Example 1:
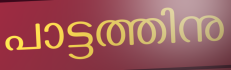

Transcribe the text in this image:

പാട്ടത്തിനു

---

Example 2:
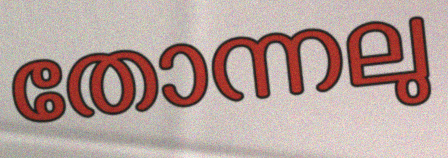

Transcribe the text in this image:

തോന്നലു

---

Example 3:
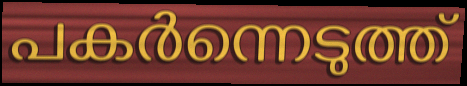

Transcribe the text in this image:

പകർന്നെടുത്ത്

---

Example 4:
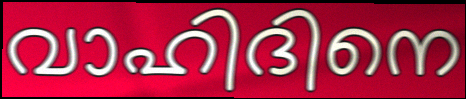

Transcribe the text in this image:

വാഹിദിനെ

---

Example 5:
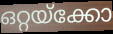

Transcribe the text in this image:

ഒറ്റയ്ക്കോ